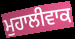
ਮੁਹਾਲੀਵਾਕ